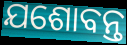
ଯଶୋବନ୍ତ